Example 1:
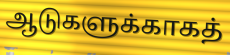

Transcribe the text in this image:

ஆடுகளுக்காகத்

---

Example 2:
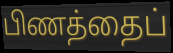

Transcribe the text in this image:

பிணத்தைப்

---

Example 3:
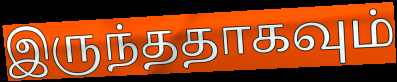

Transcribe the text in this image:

இருந்ததாகவும்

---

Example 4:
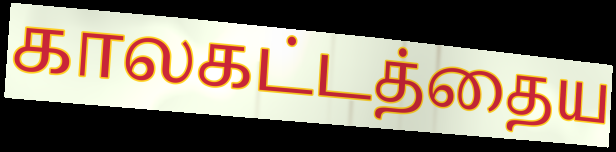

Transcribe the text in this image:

காலகட்டத்தைய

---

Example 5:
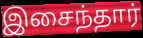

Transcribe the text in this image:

இசைந்தார்